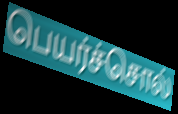
பெயர்ச்சொல்